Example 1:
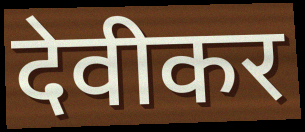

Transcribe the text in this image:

देवीकर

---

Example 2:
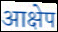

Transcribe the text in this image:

आक्षेप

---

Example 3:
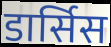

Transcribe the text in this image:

डार्सिस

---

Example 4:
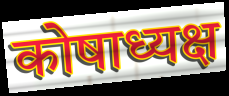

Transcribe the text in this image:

कोषाध्यक्ष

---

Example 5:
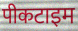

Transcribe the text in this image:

पीकटाइम